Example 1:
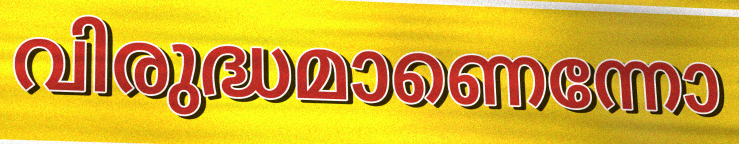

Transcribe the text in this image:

വിരുദ്ധമാണെന്നോ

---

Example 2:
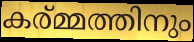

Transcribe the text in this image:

കര്മ്മത്തിനും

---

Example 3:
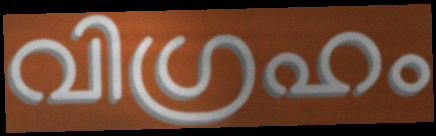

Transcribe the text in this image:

വിഗ്രഹം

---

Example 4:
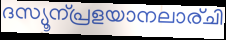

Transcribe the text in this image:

ദസ്യൂന്പ്രളയാനലാര്ചി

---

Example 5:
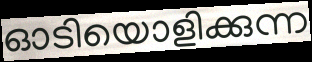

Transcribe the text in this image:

ഓടിയൊളിക്കുന്ന